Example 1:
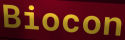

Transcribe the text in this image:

Biocon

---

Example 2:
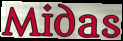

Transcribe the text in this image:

Midas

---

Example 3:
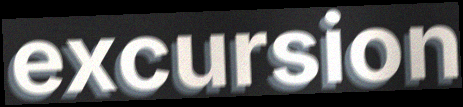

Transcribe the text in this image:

excursion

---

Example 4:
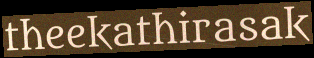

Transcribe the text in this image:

theekathirasak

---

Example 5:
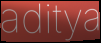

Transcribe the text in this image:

aditya